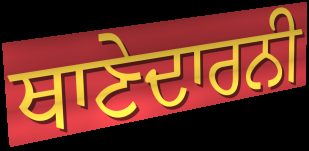
ਥਾਣੇਦਾਰਨੀ